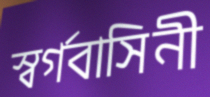
স্বর্গবাসিনী